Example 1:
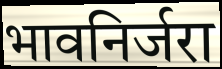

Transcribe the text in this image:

भावनिर्जरा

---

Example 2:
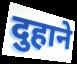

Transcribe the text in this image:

दुहाने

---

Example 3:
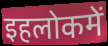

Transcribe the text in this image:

इहलोकमें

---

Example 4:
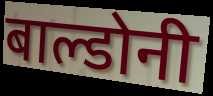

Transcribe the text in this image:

बाल्डोनी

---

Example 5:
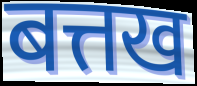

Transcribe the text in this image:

बत्तख